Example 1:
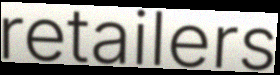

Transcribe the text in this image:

retailers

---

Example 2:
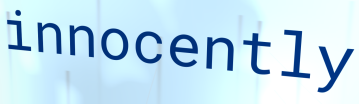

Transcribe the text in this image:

innocently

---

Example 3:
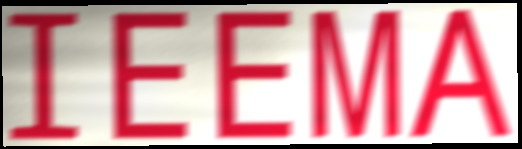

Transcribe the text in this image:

IEEMA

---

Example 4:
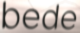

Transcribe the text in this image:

bede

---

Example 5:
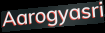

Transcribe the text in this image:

Aarogyasri